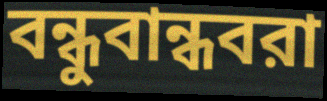
বন্ধুবান্ধবরা